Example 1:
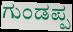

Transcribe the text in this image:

ಗುಂಡಪ್ಪ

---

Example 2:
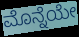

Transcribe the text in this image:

ಮೊನ್ನೆಯೇ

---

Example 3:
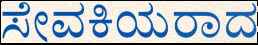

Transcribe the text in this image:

ಸೇವಕಿಯರಾದ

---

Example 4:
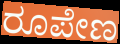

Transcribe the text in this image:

ರೂಪೇಣ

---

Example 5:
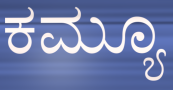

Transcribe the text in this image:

ಕಮ್ಯೂ